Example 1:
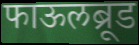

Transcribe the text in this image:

फाऊलब्रूड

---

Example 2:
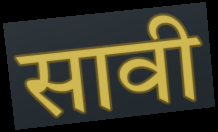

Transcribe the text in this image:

सावी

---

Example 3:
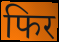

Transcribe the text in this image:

फिर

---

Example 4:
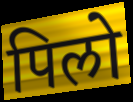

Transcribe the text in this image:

पिलो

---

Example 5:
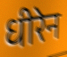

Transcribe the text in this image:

धीरेन